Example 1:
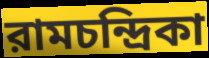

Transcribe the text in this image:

রামচন্দ্রিকা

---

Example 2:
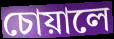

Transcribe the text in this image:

চোয়ালে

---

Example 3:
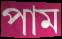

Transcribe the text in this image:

পাম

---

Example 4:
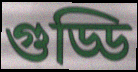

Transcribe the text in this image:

গুড্ডি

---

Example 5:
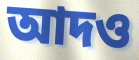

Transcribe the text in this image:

আদও